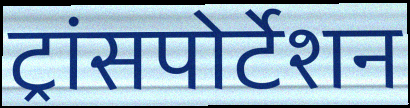
ट्रांसपोर्टेशन